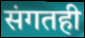
संगतही